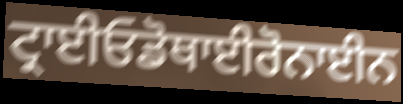
ਟ੍ਰਾਈਓਡੋਥਾਈਰੋਨਾਈਨ